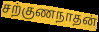
சற்குணநாதன்